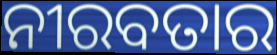
ନୀରବତାର